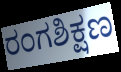
ರಂಗಶಿಕ್ಷಣ